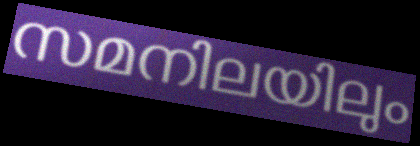
സമനിലയിലും